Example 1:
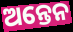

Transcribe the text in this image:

ଅନ୍ତେନ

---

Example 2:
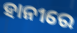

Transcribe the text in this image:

ହାନୀରେ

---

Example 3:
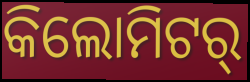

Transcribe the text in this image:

କିଲୋମିଟର୍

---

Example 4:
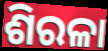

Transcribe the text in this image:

ଶିରଳା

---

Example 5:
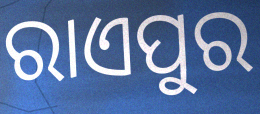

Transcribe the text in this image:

ରାଏପୁର